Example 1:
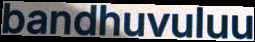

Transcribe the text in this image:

bandhuvuluu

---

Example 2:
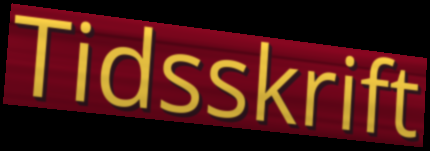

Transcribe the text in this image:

Tidsskrift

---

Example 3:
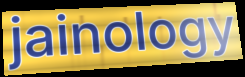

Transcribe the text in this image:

jainology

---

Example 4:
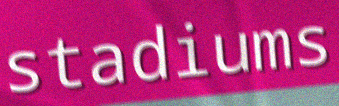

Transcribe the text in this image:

stadiums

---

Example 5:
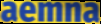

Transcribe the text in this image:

aemna